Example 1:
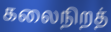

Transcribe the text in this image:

கலைநிறத்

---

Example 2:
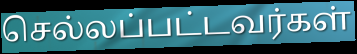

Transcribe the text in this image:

செல்லப்பட்டவர்கள்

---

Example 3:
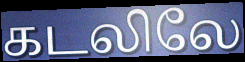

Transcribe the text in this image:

கடலிலே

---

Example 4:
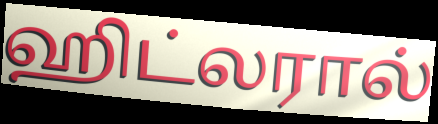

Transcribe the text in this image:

ஹிட்லரால்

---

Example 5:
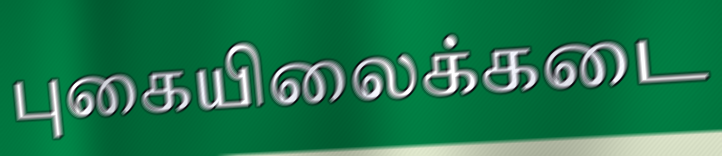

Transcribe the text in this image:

புகையிலைக்கடை